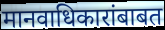
मानवाधिकारांबाबत